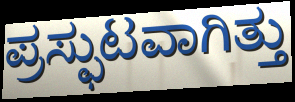
ಪ್ರಸ್ಫುಟವಾಗಿತ್ತು